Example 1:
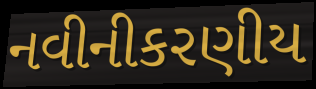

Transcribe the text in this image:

નવીનીકરણીય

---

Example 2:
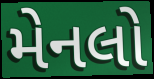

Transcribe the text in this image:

મેનલો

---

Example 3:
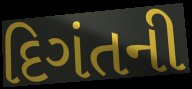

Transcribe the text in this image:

દિગંતની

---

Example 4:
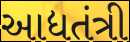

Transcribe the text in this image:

આદ્યતંત્રી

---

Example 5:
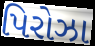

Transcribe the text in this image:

પિરોઝા